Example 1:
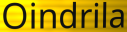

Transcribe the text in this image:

Oindrila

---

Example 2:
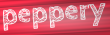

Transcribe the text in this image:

peppery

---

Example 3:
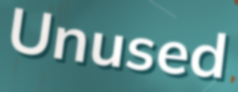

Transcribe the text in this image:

Unused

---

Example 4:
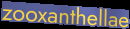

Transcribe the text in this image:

zooxanthellae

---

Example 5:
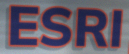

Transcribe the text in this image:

ESRI